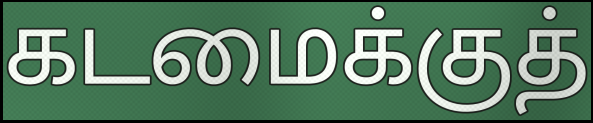
கடமைக்குத்